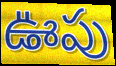
ఊపు